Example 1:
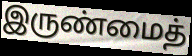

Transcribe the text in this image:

இருண்மைத்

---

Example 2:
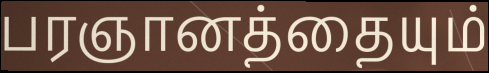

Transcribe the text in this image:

பரஞானத்தையும்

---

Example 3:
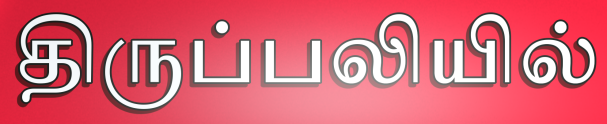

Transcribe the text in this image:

திருப்பலியில்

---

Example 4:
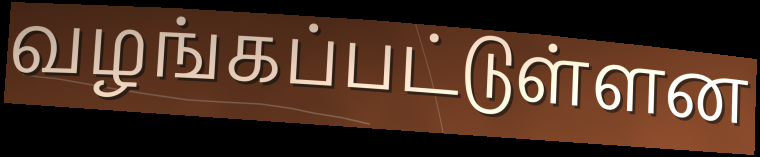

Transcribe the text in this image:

வழங்கப்பட்டுள்ளன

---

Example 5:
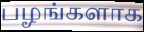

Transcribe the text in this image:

பழங்களாக